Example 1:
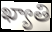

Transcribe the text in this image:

ఖ్యాతి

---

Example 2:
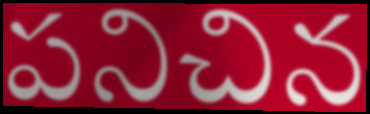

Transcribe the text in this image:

పనిచిన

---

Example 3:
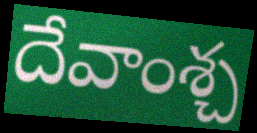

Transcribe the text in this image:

దేవాంశ్చ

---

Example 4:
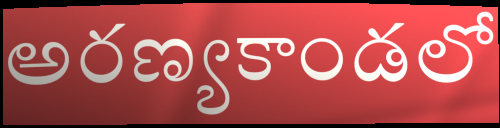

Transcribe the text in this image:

అరణ్యకాండలో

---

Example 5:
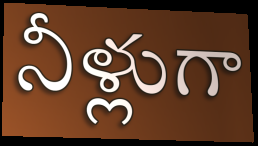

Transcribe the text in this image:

నీళ్లుగా